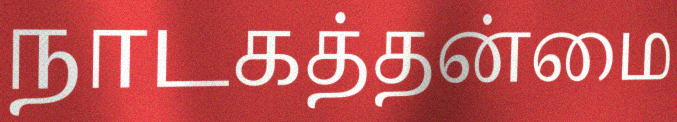
நாடகத்தன்மை